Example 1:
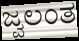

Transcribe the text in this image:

ಜ್ವಲಂತ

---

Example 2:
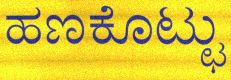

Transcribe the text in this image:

ಹಣಕೊಟ್ಟು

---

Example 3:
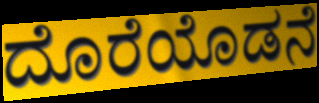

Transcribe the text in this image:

ದೊರೆಯೊಡನೆ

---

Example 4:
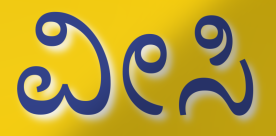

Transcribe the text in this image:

ವೀಸಿ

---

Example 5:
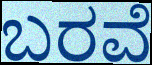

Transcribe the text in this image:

ಬರವೆ